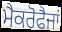
ਮੈਕਰੋਫੈਜਾਂ